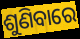
ଶୁଣିବାରେ